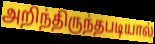
அறிந்திருந்தபடியால்